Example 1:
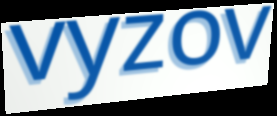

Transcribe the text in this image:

vyzov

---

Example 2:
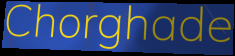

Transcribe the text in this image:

Chorghade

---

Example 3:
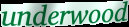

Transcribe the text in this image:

underwood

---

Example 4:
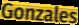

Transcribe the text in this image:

Gonzales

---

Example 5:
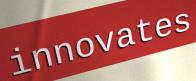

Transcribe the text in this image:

innovates